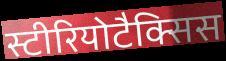
स्टीरियोटैक्सिस